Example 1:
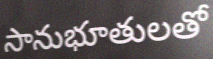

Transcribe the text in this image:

సానుభూతులతో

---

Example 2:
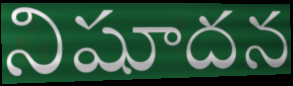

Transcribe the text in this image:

నిషూదన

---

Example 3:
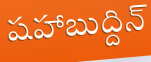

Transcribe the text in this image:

షహాబుద్దిన్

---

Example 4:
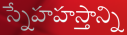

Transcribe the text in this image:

స్నేహహస్తాన్ని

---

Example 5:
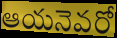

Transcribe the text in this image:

ఆయనెవరో